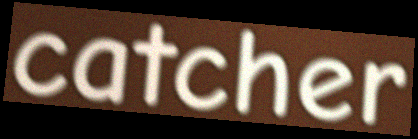
catcher